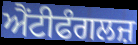
ਐਂਟੀਫੰਗਲਜ਼